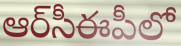
ఆర్‌సీఈపీలో